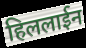
हिललाईन